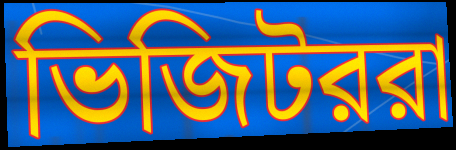
ভিজিটররা